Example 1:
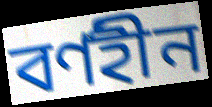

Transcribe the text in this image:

বৰ্ণহীন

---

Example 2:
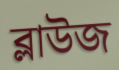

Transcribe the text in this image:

ব্লাউজ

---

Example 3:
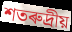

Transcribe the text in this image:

শতৰুদ্ৰীয়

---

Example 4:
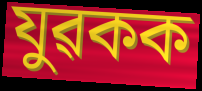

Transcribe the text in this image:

যুৱকক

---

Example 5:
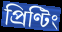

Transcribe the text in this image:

প্ৰিণ্টিং